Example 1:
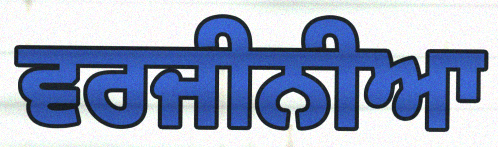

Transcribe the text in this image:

ਵਰਜੀਨੀਆ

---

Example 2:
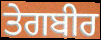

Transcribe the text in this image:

ਤੇਗਬੀਰ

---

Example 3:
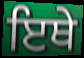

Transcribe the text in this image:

ਇਥੇ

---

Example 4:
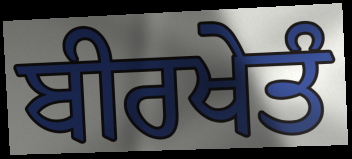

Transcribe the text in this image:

ਬੀਰਖੇਤੰ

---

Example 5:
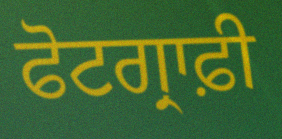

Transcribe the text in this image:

ਫੋਟਗ੍ਰਾਫ਼ੀ